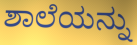
ಶಾಲೆಯನ್ನು